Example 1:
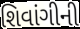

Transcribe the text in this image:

શિવાંગીની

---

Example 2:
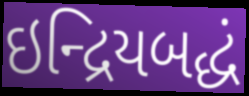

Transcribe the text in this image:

ઇન્દ્રિયબદ્ધં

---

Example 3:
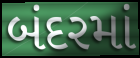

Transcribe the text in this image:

બંદરમાં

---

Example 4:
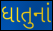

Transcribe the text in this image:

ધાતુનાં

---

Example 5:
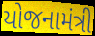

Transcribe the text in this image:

યોજનામંત્રી